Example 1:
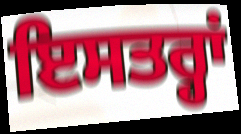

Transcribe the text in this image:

ਇਸਤਰ੍ਹਾਂ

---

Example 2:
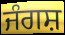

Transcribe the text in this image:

ਜੰਗਸ਼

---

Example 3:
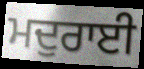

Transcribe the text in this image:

ਮਦੁਰਾਈ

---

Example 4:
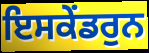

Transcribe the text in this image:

ਇਸਕੇਂਡਰੁਨ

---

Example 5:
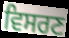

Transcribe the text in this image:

ਵਿਸਰਣ